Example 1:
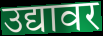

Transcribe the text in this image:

उद्यावर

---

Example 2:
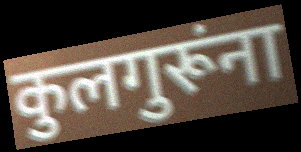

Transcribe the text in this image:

कुलगुरूंना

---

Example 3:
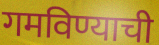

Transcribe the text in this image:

गमविण्याची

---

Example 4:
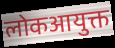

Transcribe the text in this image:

लोकआयुक्त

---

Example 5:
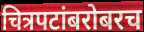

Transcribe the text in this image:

चित्रपटांबरोबरच